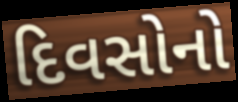
દિવસોનો